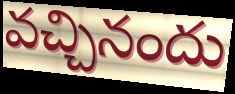
వచ్చినందు